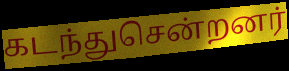
கடந்துசென்றனர்